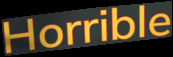
Horrible